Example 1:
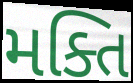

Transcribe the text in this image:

મક્તિ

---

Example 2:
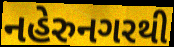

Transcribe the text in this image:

નહેરુનગરથી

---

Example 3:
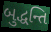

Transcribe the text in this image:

બુદ્ધન્તિ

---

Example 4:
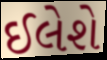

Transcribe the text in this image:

ઈલેશે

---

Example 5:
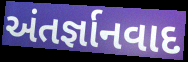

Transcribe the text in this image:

અંતર્જ્ઞાનવાદ